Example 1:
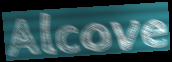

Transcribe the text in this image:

Alcove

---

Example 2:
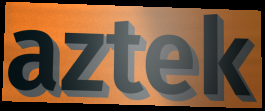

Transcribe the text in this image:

aztek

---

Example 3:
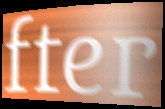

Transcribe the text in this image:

fter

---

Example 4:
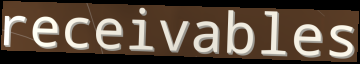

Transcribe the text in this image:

receivables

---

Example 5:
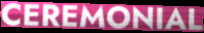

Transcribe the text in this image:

CEREMONIAL